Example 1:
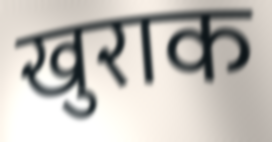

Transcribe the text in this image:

खुराक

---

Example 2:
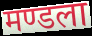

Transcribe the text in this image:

मण्डला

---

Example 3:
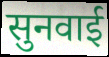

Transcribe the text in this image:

सुनवाई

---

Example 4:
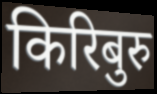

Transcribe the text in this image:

किरिबुरु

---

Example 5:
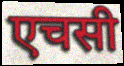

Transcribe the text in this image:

एचसी